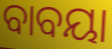
ବାବୟା